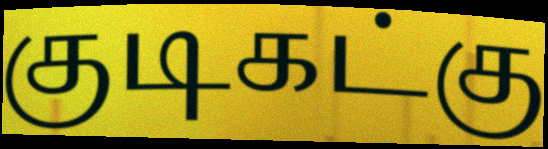
குடிகட்கு